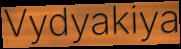
Vydyakiya